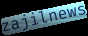
zajilnews